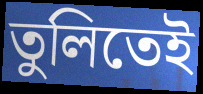
তুলিতেই